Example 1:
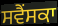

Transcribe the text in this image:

ਸਵੈਂਸਕਾ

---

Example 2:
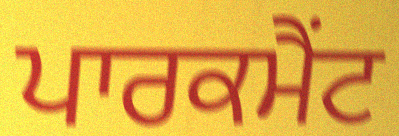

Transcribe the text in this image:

ਪਾਰਕਮੈਂਟ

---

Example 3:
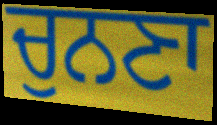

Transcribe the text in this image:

ਚੁਨਣਾ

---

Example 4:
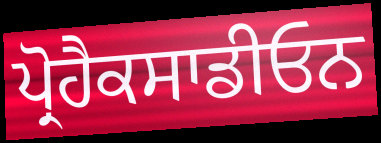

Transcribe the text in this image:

ਪ੍ਰੋਹੈਕਸਾਡੀਓਨ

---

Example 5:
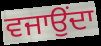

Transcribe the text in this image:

ਵਜਾਉਂਦਾ